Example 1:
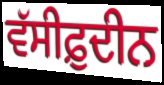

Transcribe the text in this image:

ਵੱਸੀਫ਼ੁਦੀਨ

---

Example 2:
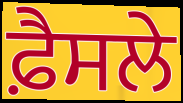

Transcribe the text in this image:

ਫ਼ੈਸਲੇ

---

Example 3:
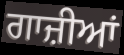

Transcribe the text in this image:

ਗਾਜ਼ੀਆਂ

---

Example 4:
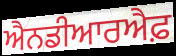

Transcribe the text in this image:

ਐਨਡੀਆਰਐਫ਼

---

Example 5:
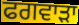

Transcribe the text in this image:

ਫਗਵਾੜਾ